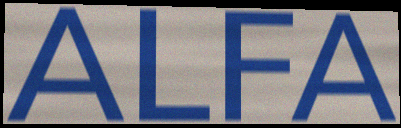
ALFA